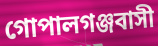
গোপালগঞ্জবাসী